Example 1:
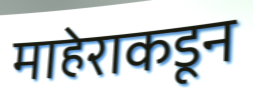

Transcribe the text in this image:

माहेराकडून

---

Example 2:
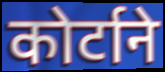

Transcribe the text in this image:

कोर्टाने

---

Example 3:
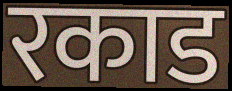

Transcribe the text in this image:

रकाड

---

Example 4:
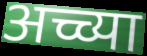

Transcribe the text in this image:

अच्च्या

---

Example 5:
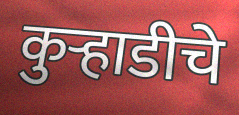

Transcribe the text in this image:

कुऱ्हाडीचे